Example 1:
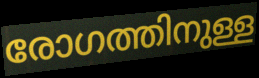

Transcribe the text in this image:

രോഗത്തിനുള്ള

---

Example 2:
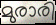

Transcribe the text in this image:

മുരാരി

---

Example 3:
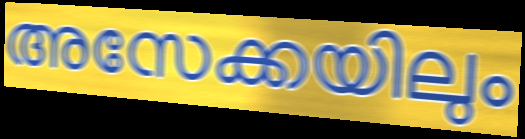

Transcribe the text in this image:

അസേക്കയിലും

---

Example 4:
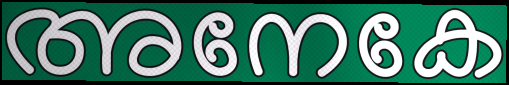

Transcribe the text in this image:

അനേകേ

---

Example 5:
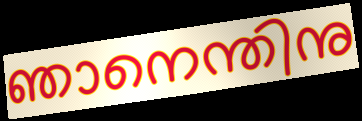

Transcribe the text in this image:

ഞാനെന്തിനു